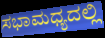
ಸಭಾಮಧ್ಯದಲ್ಲಿ